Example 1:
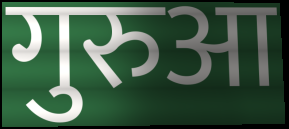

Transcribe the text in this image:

गुरुआ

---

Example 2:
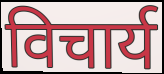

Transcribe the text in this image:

विचार्य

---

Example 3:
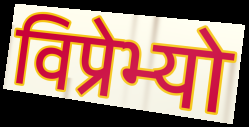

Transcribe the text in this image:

विप्रेभ्यो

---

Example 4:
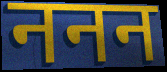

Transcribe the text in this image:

ननन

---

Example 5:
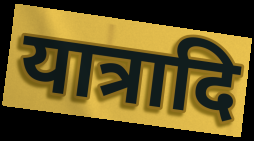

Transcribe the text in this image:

यात्रादि